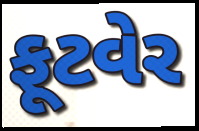
ફૂટવેર